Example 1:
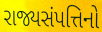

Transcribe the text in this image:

રાજ્યસંપત્તિનો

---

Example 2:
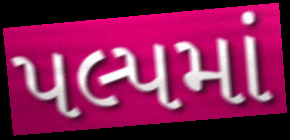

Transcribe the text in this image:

પલ્પમાં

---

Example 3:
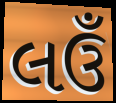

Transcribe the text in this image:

લઉઁ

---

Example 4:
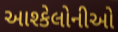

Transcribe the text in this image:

આશ્કેલોનીઓ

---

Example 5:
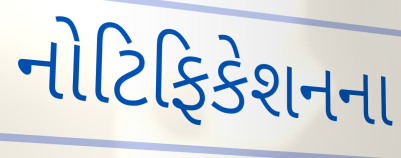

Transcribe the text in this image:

નોટિફિકેશનના